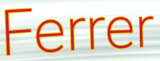
Ferrer